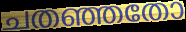
ചതഞ്ഞതോ